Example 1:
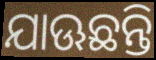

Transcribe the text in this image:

ଯାଊଛନ୍ତି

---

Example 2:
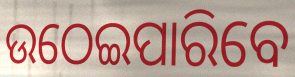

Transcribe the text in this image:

ଉଠେଇପାରିବେ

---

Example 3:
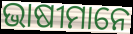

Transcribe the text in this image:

ଭାଷୀମାନେ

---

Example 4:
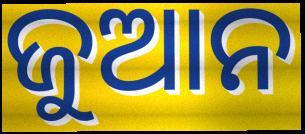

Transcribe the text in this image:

ଜୁଆନ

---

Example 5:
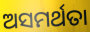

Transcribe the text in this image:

ଅସମର୍ଥତା